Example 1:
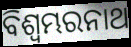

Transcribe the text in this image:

ବିଶ୍ୱମ୍ଭରନାଥ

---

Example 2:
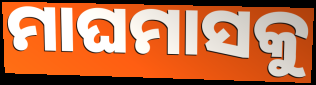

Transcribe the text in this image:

ମାଘମାସକୁ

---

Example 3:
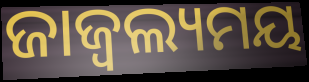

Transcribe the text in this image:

ଜାଜ୍ୱଲ୍ୟମୟ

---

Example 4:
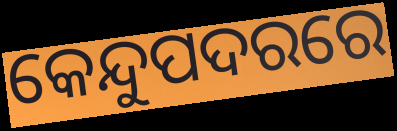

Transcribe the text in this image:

କେନ୍ଦୁପଦରରେ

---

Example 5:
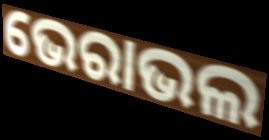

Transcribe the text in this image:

ଭେରାଭଲ